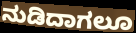
ನುಡಿದಾಗಲೂ